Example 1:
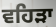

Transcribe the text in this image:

ਵਹਿੜਾ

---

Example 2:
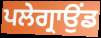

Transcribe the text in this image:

ਪਲੇਗ੍ਰਾਉਂਡ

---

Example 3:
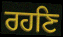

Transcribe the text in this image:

ਰਹਣਿ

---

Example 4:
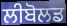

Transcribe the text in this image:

ਲੀਬੋਲਡ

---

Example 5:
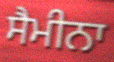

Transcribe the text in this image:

ਸੈਮੀਨਾ